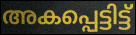
അകപ്പെട്ടിട്ട്